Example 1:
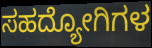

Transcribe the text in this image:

ಸಹದ್ಯೋಗಿಗಳ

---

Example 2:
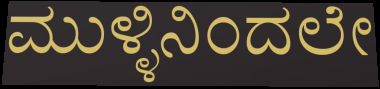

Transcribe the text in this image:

ಮುಳ್ಳಿನಿಂದಲೇ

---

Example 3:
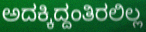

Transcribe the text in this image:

ಅದಕ್ಕಿದ್ದಂತಿರಲಿಲ್ಲ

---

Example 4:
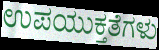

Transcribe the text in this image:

ಉಪಯುಕ್ತತೆಗಳು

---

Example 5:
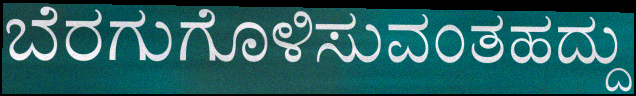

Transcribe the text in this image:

ಬೆರಗುಗೊಳಿಸುವಂತಹದ್ದು